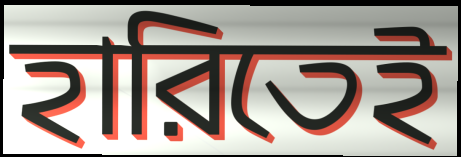
হারিতেই